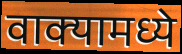
वाक्यामध्ये